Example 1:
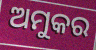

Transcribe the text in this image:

ଅମୁକର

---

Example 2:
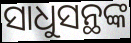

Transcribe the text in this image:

ସାଧୁସନ୍ଥଙ୍କ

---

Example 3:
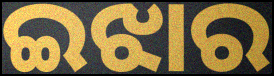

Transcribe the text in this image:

ଇଝାର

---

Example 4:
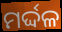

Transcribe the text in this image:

ମର୍ଦ୍ଦଳ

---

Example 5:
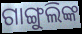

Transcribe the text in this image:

ଗାଙ୍ଗୁଲିଙ୍କ